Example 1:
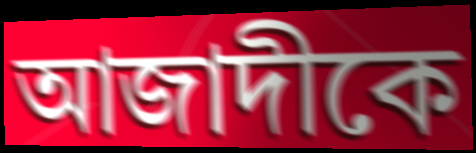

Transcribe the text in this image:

আজাদীকে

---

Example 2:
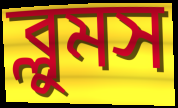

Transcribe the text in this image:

ব্লুমস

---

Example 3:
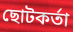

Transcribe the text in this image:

ছোটকর্তা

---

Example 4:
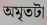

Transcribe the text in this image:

অমৃতটা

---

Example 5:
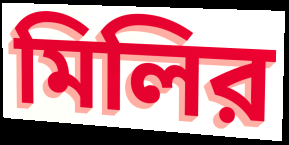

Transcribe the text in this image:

মিলির